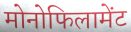
मोनोफिलामेंट